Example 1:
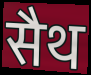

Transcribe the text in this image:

सैथ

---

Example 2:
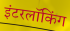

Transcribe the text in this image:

इंटरलॉकिंग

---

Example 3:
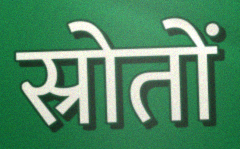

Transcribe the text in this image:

स्रोतों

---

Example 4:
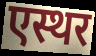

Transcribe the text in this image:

एस्थर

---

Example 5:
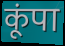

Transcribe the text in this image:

कूंपा